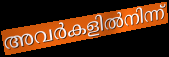
അവർകളിൽനിന്ന്